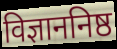
विज्ञाननिष्ठ